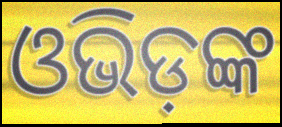
ଓଭିଡ଼ଙ୍କ